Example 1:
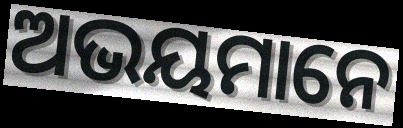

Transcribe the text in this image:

ଅଭୟମାନେ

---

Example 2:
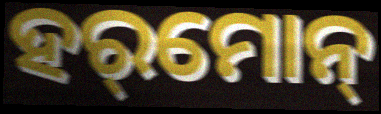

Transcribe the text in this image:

ହର୍‌ମୋନ୍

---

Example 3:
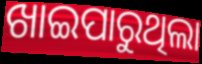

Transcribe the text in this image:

ଖାଇପାରୁଥିଲା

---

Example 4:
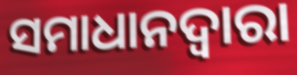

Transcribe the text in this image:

ସମାଧାନଦ୍ୱାରା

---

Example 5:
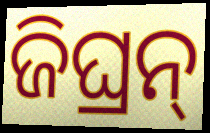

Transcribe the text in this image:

ଜିଘ୍ରନ୍